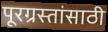
पूरग्रस्तांसाठी